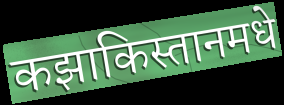
कझाकिस्तानमधे